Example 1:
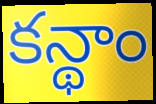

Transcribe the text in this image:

కన్థాం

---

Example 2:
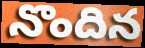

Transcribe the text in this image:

నొందిన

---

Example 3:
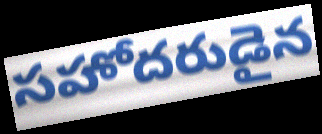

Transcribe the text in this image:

సహోదరుడైన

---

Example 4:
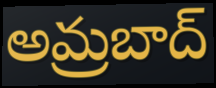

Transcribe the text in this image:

అమ్రబాద్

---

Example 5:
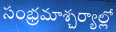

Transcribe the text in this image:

సంభ్రమాశ్చర్యాల్లో